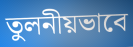
তুলনীয়ভাবে